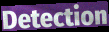
Detection